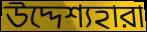
উদ্দেশ্যহারা